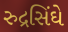
રુદ્રસિંઘે